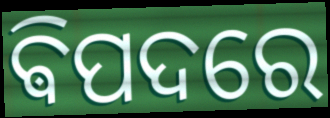
ଵିପଦରେ